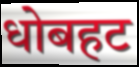
धोबहट